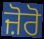
ਜ਼ੋਰੋ